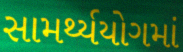
સામર્થ્યયોગમાં